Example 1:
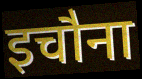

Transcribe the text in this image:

इचौना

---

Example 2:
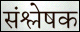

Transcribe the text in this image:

संश्लेषक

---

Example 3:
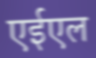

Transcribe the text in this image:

एईएल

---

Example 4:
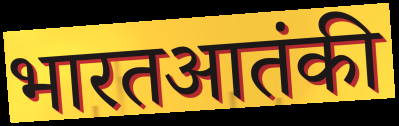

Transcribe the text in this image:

भारतआतंकी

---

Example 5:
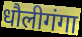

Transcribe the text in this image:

धौलीगंगा